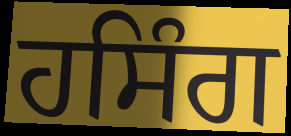
ਹਸਿੰਗ